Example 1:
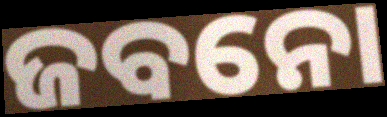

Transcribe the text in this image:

ଜବନୋ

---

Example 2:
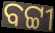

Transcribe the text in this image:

ବଟ୍ଟୀ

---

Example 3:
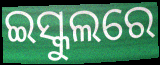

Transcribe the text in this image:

ଇସ୍କୁଲରେ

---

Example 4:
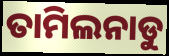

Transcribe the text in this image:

ତାମିଲନାଡୁ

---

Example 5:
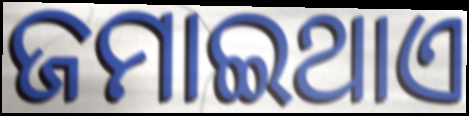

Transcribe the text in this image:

ଜମାଇଥାଏ